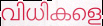
വിധികളെ